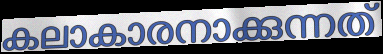
കലാകാരനാക്കുന്നത്